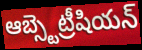
ఆబ్స్టెట్రీషియన్